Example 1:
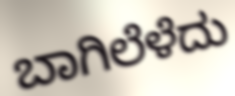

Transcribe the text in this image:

ಬಾಗಿಲೆಳೆದು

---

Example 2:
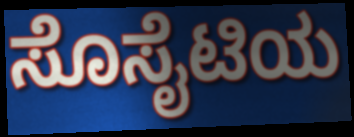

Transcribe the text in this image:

ಸೊಸೈಟಿಯ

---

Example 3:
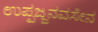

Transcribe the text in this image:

ಉಪ್ಪಜ್ಜನವಸೇನ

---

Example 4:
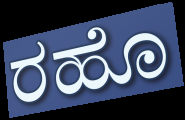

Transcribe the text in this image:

ರಹೊ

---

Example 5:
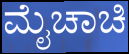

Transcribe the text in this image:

ಮೈಚಾಚಿ